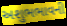
અશુભભાવની